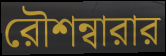
রৌশন্বারার